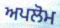
ਅਪਲੋਮ